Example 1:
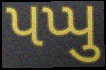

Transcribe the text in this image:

પપ્પુ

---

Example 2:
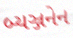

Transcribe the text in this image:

બ્યઞ્જનેન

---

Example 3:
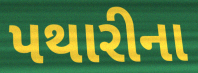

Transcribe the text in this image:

પથારીના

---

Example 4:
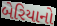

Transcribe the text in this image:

બેરિયાનો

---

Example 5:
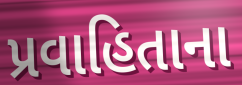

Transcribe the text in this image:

પ્રવાહિતાના